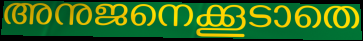
അനുജനെക്കൂടാതെ